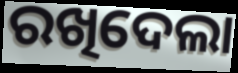
ରଖିଦେଲା